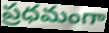
ప్రధమంగా